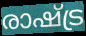
രാഷ്ട്ര